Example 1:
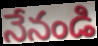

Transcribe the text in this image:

నేనండి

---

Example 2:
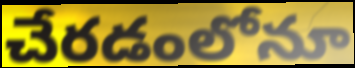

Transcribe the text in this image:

చేరడంలోనూ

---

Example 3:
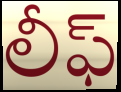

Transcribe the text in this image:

లీఫ్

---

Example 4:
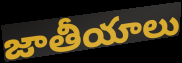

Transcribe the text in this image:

జాతీయాలు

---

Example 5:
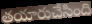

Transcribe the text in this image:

తయారుచేసింది